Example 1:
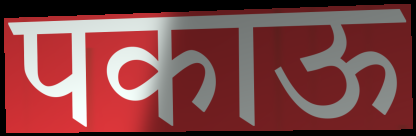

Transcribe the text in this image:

पकाऊ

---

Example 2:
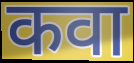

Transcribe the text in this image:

कवा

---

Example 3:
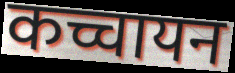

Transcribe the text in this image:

कच्चायन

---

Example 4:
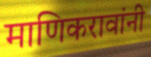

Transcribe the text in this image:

माणिकरावांनी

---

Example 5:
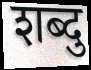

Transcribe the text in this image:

शब्दु